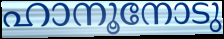
ഹാനൂനോടു